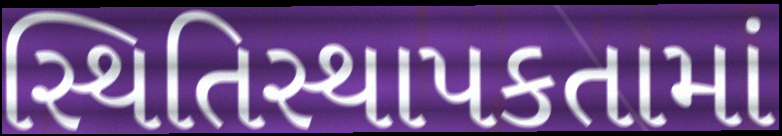
સ્થિતિસ્થાપકતામાં